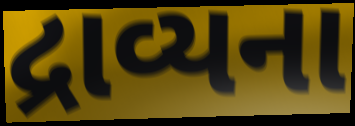
દ્રાવ્યના